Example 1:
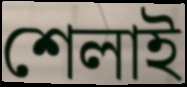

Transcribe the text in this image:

শেলাই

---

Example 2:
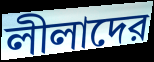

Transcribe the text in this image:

লীলাদের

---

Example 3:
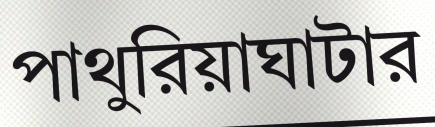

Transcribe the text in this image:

পাথুরিয়াঘাটার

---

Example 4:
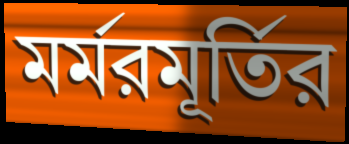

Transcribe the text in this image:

মর্মরমূর্তির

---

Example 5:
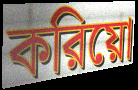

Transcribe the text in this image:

করিয়ো